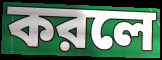
করলে